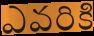
ఎవరికి